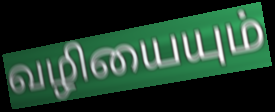
வழியையும்